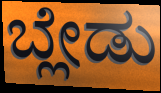
ಬ್ಲೇಡು